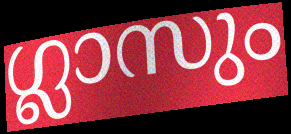
ഗ്ലാസും